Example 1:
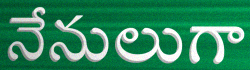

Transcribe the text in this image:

నేనులుగా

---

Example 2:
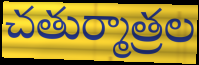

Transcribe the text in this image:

చతుర్మాత్రల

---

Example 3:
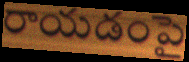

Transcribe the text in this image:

రాయడంపై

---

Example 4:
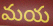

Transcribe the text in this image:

మయ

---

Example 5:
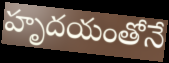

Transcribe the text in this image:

హృదయంతోనే